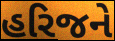
હરિજને